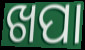
ଖପା